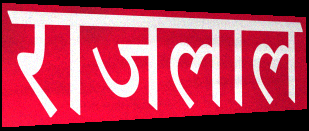
राजलाल